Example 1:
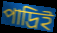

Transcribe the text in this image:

পাদ্রিই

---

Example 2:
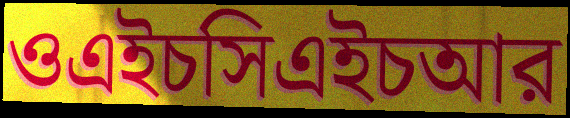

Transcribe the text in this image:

ওএইচসিএইচআর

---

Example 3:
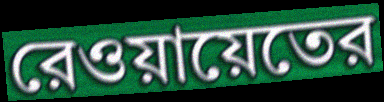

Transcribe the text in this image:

রেওয়ায়েতের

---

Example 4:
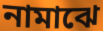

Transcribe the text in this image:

নামাঝে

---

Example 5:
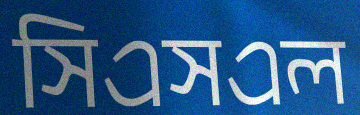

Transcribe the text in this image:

সিএসএল